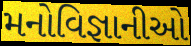
મનોવિજ્ઞાનીઓ